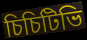
চিচিটিভি